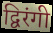
द्विरंगी